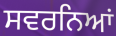
ਸਵਰਨਿਆਂ